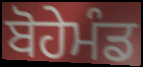
ਬੋਹੇਮੰਡ